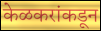
केळकरांकडून